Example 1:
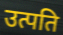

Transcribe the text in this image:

उत्पति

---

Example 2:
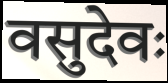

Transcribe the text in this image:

वसुदेवः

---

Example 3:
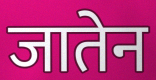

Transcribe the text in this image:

जातेन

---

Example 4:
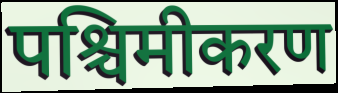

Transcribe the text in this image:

पश्चिमीकरण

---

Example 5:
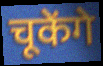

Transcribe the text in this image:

चूकेंगे